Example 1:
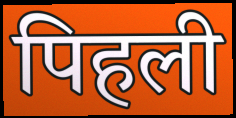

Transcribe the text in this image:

पिहली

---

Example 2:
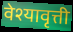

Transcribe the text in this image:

वेश्यावृत्ती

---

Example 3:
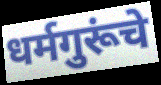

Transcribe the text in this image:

धर्मगुरूंचे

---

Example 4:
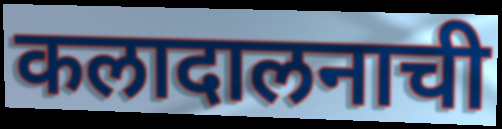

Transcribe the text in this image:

कलादालनाची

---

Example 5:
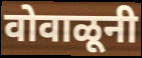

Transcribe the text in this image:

वोवाळूनी